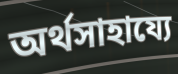
অর্থসাহায্যে